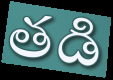
తడి